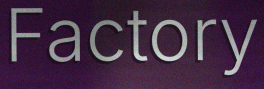
Factory